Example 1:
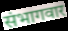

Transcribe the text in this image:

संभागवार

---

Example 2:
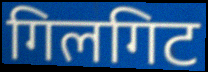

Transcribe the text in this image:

गिलगिट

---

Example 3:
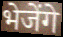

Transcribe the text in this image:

भेजेंगे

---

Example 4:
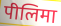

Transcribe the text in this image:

पीलिमा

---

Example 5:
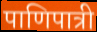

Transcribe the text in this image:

पाणिपात्री